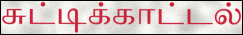
சுட்டிக்காட்டல்